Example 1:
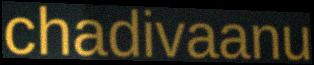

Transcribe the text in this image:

chadivaanu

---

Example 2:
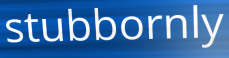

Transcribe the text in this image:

stubbornly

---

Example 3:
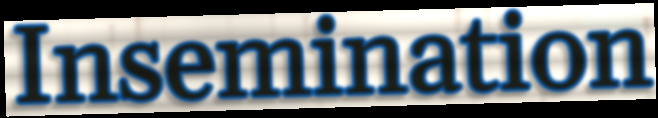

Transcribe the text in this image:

Insemination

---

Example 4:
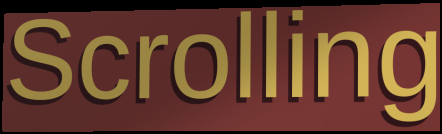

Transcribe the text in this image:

Scrolling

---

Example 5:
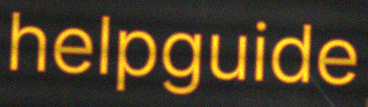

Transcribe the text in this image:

helpguide